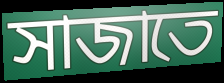
সাজাতে